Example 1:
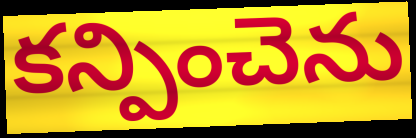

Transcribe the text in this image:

కన్పించెను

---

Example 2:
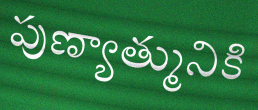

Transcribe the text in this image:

పుణ్యాత్మునికి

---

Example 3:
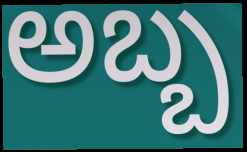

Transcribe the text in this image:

అబ్బ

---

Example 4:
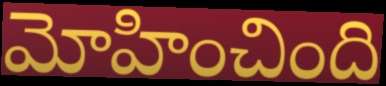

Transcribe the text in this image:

మోహించింది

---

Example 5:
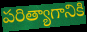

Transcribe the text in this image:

పరిత్యాగానికి